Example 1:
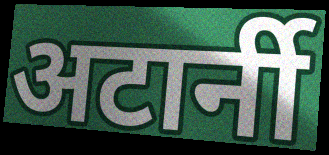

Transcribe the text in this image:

अटार्नी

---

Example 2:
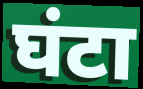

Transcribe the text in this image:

घंटा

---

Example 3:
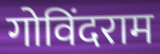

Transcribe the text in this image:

गोविंदराम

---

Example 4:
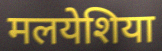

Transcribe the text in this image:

मलयेशिया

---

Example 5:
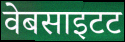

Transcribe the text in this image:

वेबसाइटट